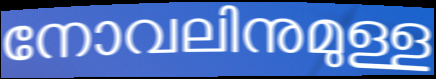
നോവലിനുമുള്ള